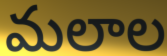
మలాల